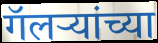
गॅलर्‍यांच्या